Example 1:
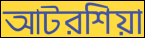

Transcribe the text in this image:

আটরশিয়া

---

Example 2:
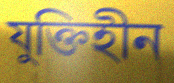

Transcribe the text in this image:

যুক্তিহীন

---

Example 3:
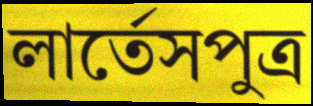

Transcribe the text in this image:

লার্তেসপুত্র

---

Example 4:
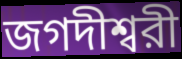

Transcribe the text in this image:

জগদীশ্বরী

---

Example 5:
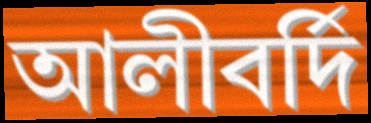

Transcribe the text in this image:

আলীবর্দি